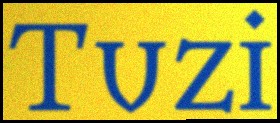
Tuzi